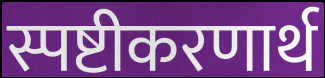
स्पष्टीकरणार्थ